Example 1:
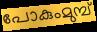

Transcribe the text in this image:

പോകുംമുമ്പ്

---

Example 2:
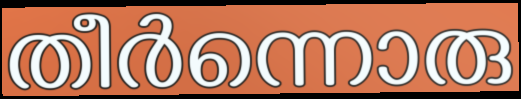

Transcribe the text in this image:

തീർന്നൊരു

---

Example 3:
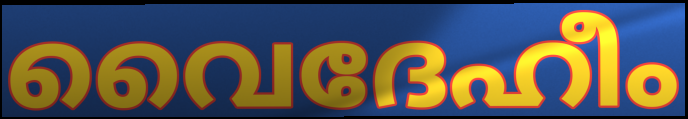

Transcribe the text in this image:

വൈദേഹീം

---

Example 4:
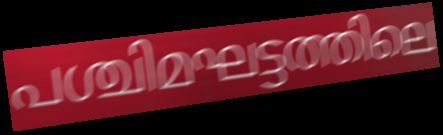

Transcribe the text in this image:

പശ്ചിമഘട്ടത്തിലെ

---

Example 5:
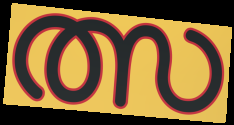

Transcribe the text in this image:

ത്സ